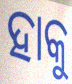
ହାକୁ